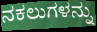
ನಕಲುಗಳನ್ನು